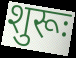
शुरूः